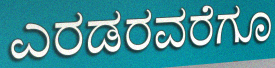
ಎರಡರವರೆಗೂ